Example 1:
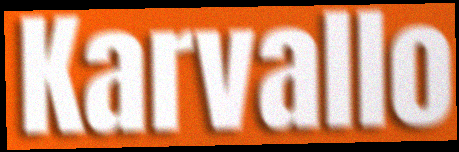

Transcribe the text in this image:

Karvallo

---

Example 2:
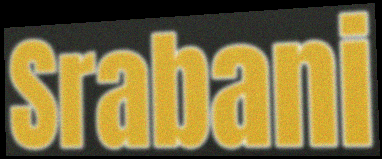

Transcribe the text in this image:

Srabani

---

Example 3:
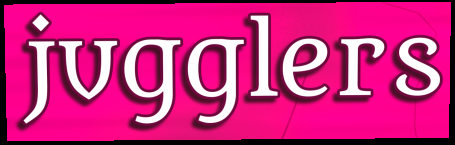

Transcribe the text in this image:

jugglers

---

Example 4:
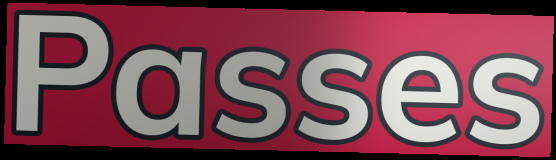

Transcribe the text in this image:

Passes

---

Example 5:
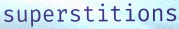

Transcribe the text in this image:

superstitions